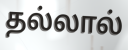
தல்லால்